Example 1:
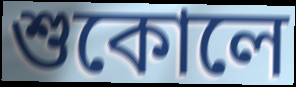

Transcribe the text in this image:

শুকোলে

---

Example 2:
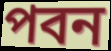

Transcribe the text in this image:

পবন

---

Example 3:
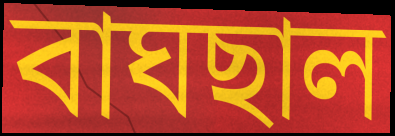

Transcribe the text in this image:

বাঘছাল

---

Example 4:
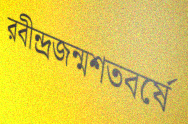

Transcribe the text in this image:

রবীন্দ্রজন্মশতবর্ষে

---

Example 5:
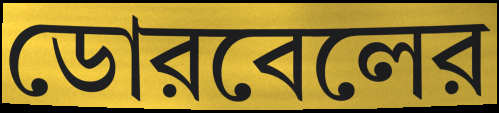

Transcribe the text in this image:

ডোরবেলের